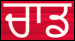
ਚਾਡ